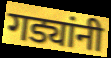
गड्यांनी